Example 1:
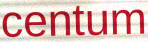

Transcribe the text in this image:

centum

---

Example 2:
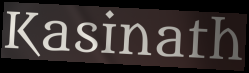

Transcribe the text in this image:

Kasinath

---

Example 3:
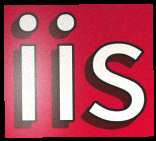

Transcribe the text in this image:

iis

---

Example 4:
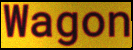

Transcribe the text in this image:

Wagon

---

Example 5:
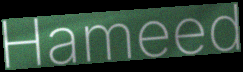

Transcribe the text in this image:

Hameed